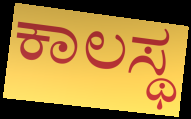
ಕಾಲಸ್ಥ